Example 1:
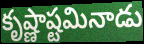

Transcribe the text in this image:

కృష్ణాష్టమినాడు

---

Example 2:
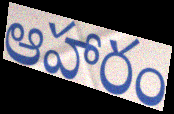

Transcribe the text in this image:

ఆహారం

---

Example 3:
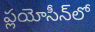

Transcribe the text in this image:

ప్లయోసీన్‌లో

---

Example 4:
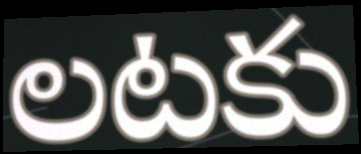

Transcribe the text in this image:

లటకు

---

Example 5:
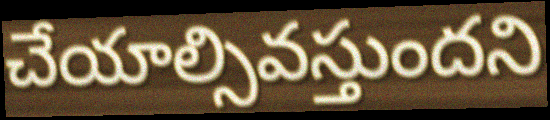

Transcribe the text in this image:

చేయాల్సివస్తుందని